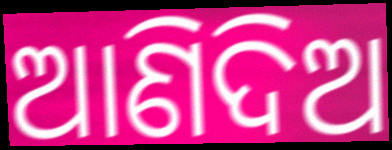
ଆଣିଦିଅ